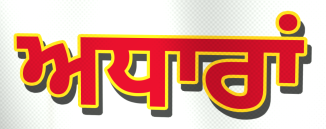
ਅਧਾਰਾਂ